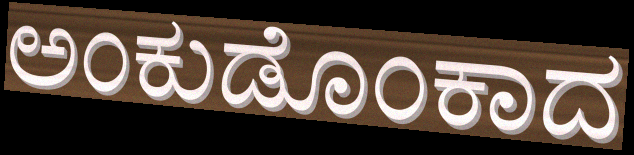
ಅಂಕುಡೊಂಕಾದ